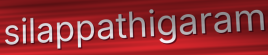
silappathigaram